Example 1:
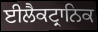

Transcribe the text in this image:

ਈਲੈਕਟ੍ਰਾਨਿਕ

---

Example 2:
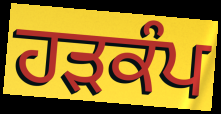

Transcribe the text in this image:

ਹਡ਼ਕੰਪ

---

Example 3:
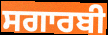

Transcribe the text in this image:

ਸਗਾਰਬੀ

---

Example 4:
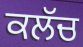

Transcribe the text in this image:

ਕਲੱਚ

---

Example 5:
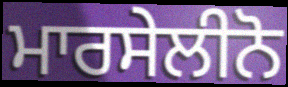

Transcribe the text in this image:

ਮਾਰਸੇਲੀਨੋ